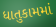
ધાતુકામમાં